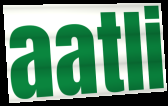
aatli